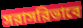
সরাসরিভাবে